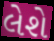
લેશે